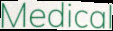
Medical